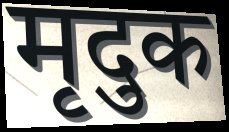
मृदुक